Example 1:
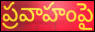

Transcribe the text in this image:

ప్రవాహంపై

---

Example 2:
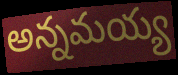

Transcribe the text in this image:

అన్నమయ్య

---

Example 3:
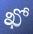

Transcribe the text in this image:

ఖో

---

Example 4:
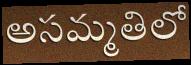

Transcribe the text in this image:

అసమ్మతిలో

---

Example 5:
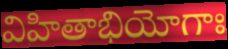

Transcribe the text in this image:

విహితాభియోగాః